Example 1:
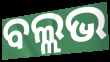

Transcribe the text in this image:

ବଲ୍ଲଭ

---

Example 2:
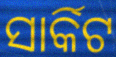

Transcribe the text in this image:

ସାର୍କିଟ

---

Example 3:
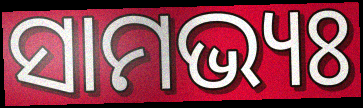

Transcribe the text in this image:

ସାମଭ୍ୟଃ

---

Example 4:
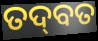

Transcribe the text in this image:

ତଦ୍‍ବତ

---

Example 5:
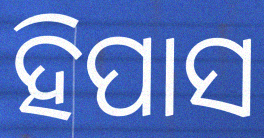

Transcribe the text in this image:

ହିପାସ